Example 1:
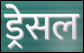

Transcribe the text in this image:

ड्रेसल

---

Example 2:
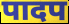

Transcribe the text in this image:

पादप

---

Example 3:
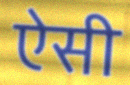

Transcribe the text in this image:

ऐसी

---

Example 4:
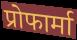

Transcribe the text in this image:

प्रोफार्मा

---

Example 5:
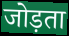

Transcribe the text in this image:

जोड़ता